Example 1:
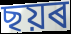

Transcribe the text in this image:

ছয়ৰ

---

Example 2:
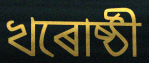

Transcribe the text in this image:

খৰোষ্ঠী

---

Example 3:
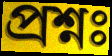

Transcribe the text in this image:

প্ৰশ্নঃ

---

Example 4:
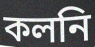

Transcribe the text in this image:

কলনি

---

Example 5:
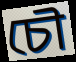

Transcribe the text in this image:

চৌ